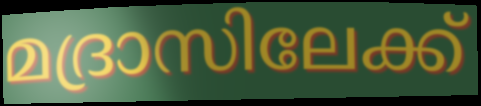
മദ്രാസിലേക്ക്